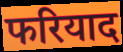
फरियाद